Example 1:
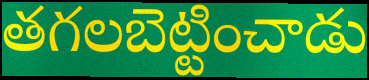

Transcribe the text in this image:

తగలబెట్టించాడు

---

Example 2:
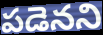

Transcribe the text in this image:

పడెనని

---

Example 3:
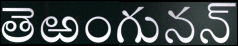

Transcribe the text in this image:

తెఱంగునన్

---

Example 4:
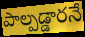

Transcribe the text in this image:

పాల్పడ్డారనే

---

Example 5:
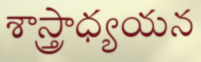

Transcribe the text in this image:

శాస్త్రాధ్యయన